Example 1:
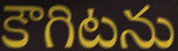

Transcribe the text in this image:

కౌగిటను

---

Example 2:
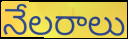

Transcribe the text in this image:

నేలరాలు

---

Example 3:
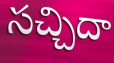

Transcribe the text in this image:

సచ్చిదా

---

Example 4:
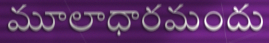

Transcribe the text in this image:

మూలాధారమందు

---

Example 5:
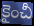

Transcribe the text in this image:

కైంచీ